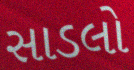
સાડલો